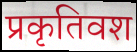
प्रकृतिवश